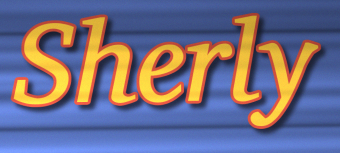
Sherly